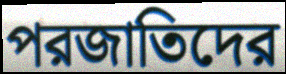
পরজাতিদের